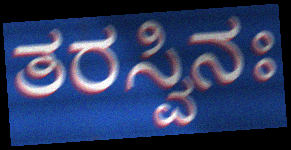
ತರಸ್ವಿನಃ